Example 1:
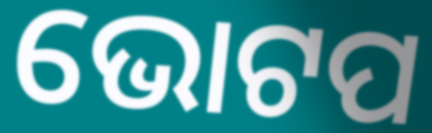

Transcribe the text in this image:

ଭୋଟପ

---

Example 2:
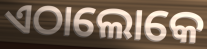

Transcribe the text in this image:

ଏଠାଲୋକେ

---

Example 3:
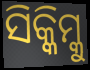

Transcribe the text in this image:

ସିକ୍କିମ୍କୁ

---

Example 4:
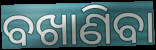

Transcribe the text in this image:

ବଖାଣିବା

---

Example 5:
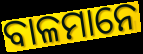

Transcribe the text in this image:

ବାଳମାନେ